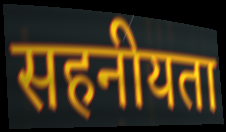
सहनीयता